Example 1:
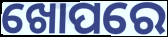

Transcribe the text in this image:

ଖୋପରେ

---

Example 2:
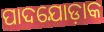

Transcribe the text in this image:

ପାଦଯୋଡ଼ାକ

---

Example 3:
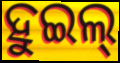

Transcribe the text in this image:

ହୁଇଲ୍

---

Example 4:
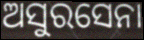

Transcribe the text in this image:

ଅସୁରସେନା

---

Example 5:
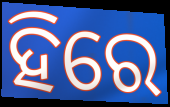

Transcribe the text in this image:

ହିରେ